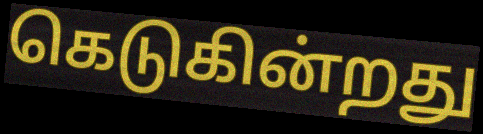
கெடுகின்றது